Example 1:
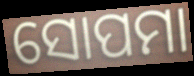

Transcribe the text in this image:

ସୋପମା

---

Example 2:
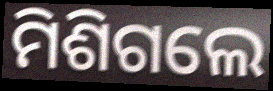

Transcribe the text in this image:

ମିଶିଗଲେ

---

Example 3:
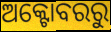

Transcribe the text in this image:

ଅକ୍ଟୋବରରୁ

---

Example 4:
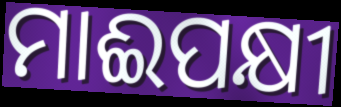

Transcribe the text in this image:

ମାଈପକ୍ଷୀ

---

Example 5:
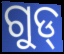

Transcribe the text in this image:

ଗୁଡ୍